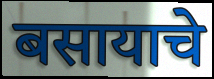
बसायाचे